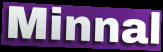
Minnal